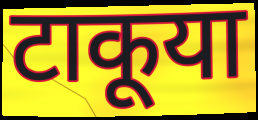
टाकूया